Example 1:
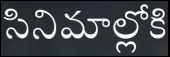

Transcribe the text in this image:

సినిమాల్లోకి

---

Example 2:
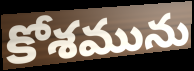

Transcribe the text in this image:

కోశమును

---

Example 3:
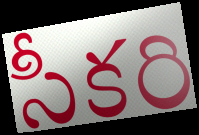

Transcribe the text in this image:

సీకరి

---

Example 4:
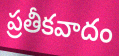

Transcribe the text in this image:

ప్రతీకవాదం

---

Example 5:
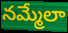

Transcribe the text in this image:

నమ్మేలా